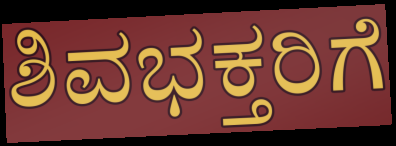
ಶಿವಭಕ್ತರಿಗೆ